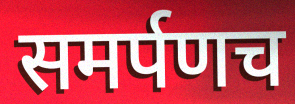
समर्पणच